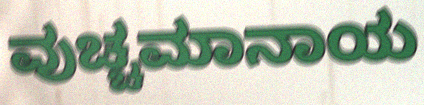
ವುಚ್ಚಮಾನಾಯ